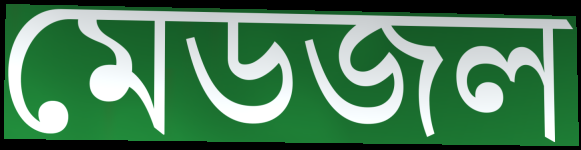
মেডজল